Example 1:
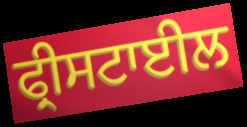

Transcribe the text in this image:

ਫ੍ਰੀਸਟਾਈਲ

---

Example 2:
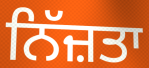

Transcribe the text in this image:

ਨਿੱਜ਼ਤਾ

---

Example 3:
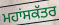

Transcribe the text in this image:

ਮਹਾਂਸਕੱਤਰ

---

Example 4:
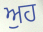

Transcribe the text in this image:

ਅੁਹ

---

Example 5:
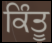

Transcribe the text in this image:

ਕਿੰਤੂ